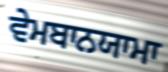
ਵੇਮਬਾਨਯਾਮਾ